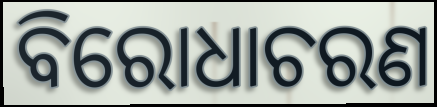
ବିରୋଧାଚରଣ